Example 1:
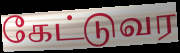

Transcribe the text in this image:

கேட்டுவர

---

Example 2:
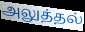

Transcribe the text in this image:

அலுத்தல்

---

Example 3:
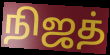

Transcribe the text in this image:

நிஜத்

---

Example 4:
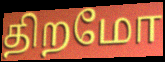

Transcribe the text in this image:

திறமோ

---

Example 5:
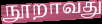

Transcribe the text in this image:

நூறாவது